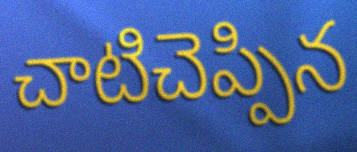
చాటిచెప్పిన